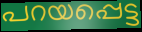
പറയപ്പെട്ട